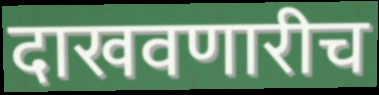
दाखवणारीच